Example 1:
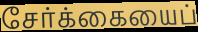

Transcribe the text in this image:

சேர்க்கையைப்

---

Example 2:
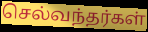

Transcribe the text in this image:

செல்வந்தர்கள்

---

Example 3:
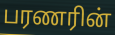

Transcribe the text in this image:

பரணரின்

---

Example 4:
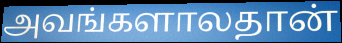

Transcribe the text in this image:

அவங்களாலதான்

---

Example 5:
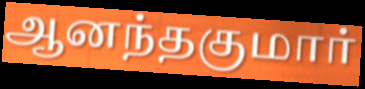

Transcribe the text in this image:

ஆனந்தகுமார்